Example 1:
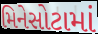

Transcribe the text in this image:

મિનેસોટામાં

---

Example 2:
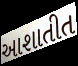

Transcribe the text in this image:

આશાતીત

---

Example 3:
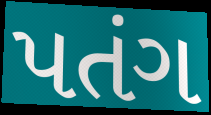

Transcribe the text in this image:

પતંગ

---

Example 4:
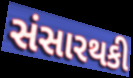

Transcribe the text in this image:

સંસારથકી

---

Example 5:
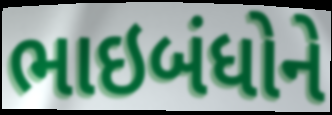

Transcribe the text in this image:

ભાઇબંધોને